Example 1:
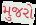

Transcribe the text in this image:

મુજરો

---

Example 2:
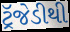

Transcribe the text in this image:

ટ્રૅજેડીથી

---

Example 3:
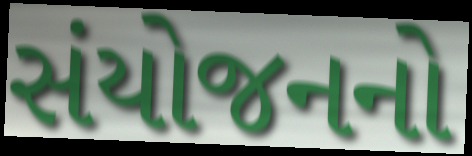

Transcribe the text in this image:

સંયોજનનો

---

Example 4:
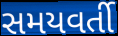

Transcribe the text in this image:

સમયવર્તી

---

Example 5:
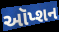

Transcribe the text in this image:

ઑપ્શન